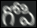
గోపి